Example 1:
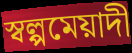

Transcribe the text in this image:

স্বল্পমেয়াদী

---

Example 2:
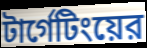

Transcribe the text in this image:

টার্গেটিংয়ের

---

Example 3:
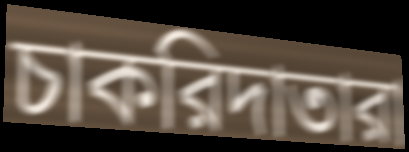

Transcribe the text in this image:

চাকরিদাতারা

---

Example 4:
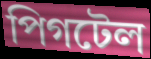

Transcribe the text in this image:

পিগটেল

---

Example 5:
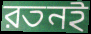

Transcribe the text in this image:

রতনই